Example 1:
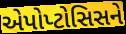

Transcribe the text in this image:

એપોપ્ટોસિસને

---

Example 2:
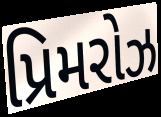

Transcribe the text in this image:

પ્રિમરોઝ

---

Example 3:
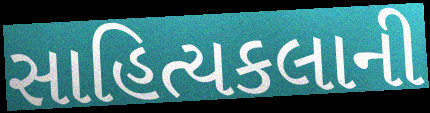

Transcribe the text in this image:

સાહિત્યકલાની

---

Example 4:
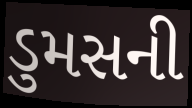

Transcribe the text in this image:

ડુમસની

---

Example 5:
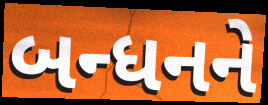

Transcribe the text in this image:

બન્ધનને